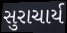
સુરાચાર્ય